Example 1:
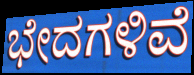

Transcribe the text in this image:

ಭೇದಗಳಿವೆ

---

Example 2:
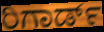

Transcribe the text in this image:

ರಿಗಾರ್ಡ್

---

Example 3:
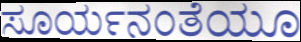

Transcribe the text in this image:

ಸೂರ್ಯನಂತೆಯೂ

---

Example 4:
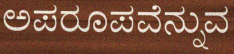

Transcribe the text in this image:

ಅಪರೂಪವೆನ್ನುವ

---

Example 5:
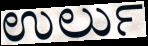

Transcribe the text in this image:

ಉರ್ಲು